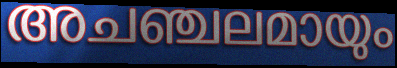
അചഞ്ചലമായും